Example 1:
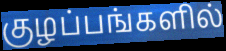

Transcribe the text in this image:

குழப்பங்களில்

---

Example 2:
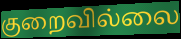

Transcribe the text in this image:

குறைவில்லை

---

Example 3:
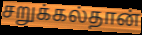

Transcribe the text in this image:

சறுக்கல்தான்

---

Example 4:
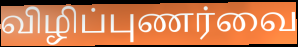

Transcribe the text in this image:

விழிப்புணர்வை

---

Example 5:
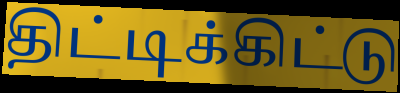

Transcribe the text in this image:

திட்டிக்கிட்டு